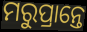
ମରୁପ୍ରାନ୍ତେ